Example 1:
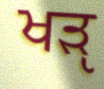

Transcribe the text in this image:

ਖੜੵ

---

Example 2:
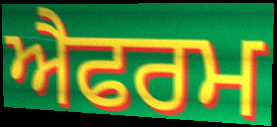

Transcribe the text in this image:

ਐਫਰਮ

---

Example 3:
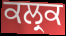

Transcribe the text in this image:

ਕਲ੍ਰਕ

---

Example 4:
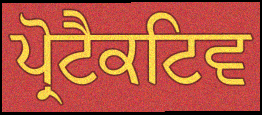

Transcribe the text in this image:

ਪ੍ਰੋਟੈਕਟਿਵ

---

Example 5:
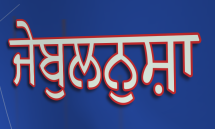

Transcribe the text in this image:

ਜੇਬੁਲਨੁਸ਼ਾ